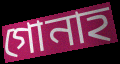
গোনাহ